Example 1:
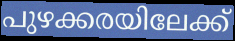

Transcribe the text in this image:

പുഴക്കരയിലേക്ക്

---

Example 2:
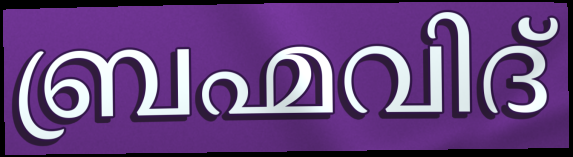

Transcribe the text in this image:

ബ്രഹ്മവിദ്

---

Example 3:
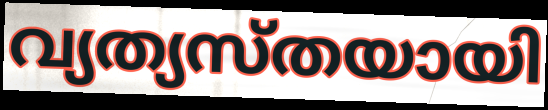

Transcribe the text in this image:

വ്യത്യസ്തയായി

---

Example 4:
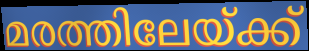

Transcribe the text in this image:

മരത്തിലേയ്ക്ക്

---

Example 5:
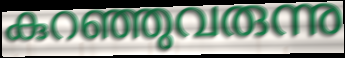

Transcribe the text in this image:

കുറഞ്ഞുവരുന്നു